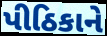
પીઠિકાને